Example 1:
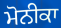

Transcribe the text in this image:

ਮੋਨੀਕਾ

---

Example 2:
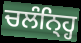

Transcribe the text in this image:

ਚਲੰਨ੍ਹ੍ਹਿ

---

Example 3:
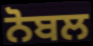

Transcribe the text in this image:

ਨੋਬਲ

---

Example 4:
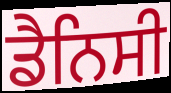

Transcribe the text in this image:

ਡੈਨਿਸੀ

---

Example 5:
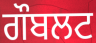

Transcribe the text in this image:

ਗੌਬਲਟ